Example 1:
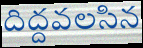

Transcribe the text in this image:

దిద్దవలసిన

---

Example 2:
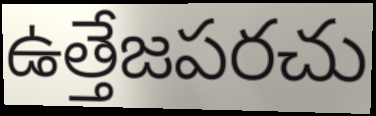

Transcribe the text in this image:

ఉత్తేజపరచు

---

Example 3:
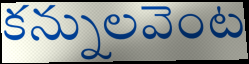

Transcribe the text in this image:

కన్నులవెంట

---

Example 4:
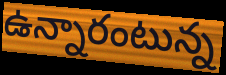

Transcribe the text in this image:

ఉన్నారంటున్న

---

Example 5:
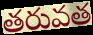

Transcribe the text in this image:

తరువత